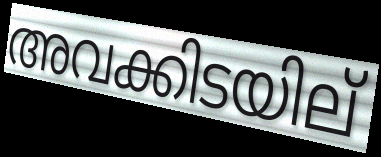
അവക്കിടയില്